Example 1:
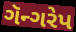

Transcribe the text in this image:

ગૅન્ગરેપ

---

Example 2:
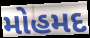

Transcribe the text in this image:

મોહમદ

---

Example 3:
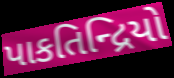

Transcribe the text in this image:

પાકતિન્દ્રિયો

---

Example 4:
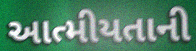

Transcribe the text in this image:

આત્મીયતાની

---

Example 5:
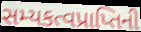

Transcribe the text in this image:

સમ્યકત્વપ્રાપ્તિની